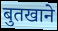
बुतखाने